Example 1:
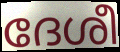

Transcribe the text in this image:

ദേശീ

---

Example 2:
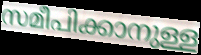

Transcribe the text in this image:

സമീപിക്കാനുള്ള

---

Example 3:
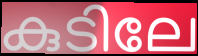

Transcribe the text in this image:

കുടിലേ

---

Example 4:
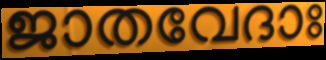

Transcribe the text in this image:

ജാതവേദാഃ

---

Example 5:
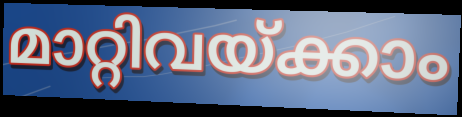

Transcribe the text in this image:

മാറ്റിവയ്ക്കാം